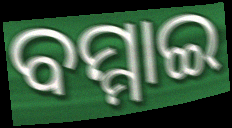
ବମ୍ମାଇ